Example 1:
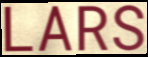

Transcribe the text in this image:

LARS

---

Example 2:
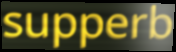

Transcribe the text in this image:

supperb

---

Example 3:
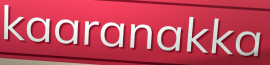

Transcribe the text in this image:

kaaranakka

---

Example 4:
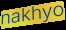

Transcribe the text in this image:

nakhyo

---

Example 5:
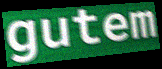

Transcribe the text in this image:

gutem